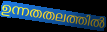
ഉന്നതതലത്തിൽ